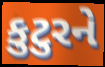
કુટુરને